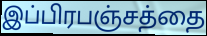
இப்பிரபஞ்சத்தை